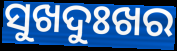
ସୁଖଦୁଃଖର